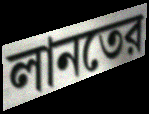
লানতের